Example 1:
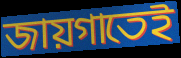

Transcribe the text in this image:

জায়গাতেই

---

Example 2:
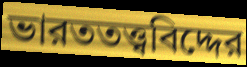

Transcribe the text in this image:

ভারততত্ত্ববিদ্দের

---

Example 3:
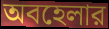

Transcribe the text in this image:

অবহেলার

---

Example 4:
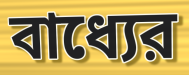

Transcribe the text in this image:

বাধ্যের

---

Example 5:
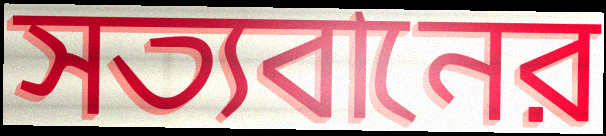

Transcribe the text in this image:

সত্যবানের